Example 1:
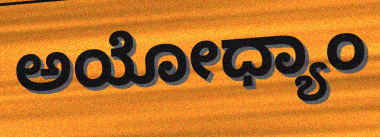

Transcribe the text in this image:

ಅಯೋಧ್ಯಾಂ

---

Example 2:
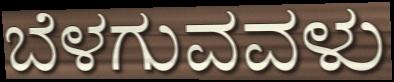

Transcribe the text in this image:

ಬೆಳಗುವವಳು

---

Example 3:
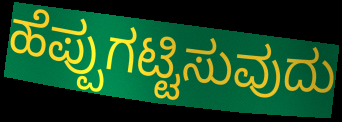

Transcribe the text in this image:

ಹೆಪ್ಪುಗಟ್ಟಿಸುವುದು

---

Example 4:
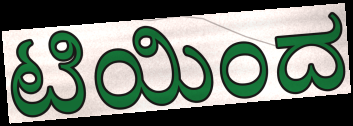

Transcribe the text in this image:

ಟಿಯಿಂದ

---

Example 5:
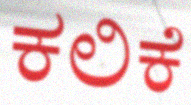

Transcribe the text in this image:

ಕಲಿಕೆ